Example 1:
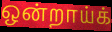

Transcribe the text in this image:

ஒன்றாய்க்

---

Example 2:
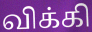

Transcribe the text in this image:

விக்கி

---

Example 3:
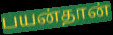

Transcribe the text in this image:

பயன்தான்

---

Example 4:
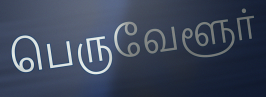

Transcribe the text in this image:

பெருவேளூர்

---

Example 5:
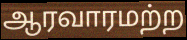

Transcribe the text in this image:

ஆரவாரமற்ற